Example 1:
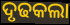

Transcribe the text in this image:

ଦୃଢକଲା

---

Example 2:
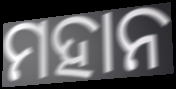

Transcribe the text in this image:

ମହାନ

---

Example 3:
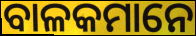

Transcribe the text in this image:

ବାଳକମାନେ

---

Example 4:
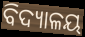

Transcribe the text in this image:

ବିଦ୍ଯାଳୟ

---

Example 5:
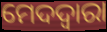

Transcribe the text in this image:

ମେଦଦ୍ଵାରା